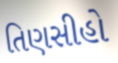
તિણસીહો